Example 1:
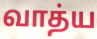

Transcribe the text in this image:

வாத்ய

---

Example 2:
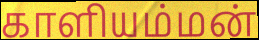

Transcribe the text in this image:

காளியம்மன்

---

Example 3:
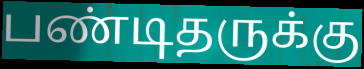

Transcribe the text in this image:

பண்டிதருக்கு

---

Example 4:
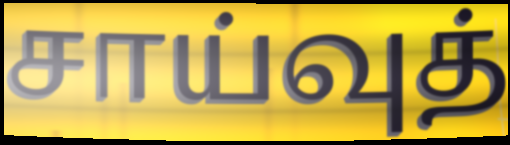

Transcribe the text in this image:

சாய்வுத்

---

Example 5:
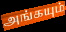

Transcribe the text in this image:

அங்கயும்